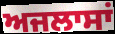
ਅਜਲਾਸਾਂ